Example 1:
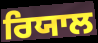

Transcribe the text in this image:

ਰਿਯਾਲ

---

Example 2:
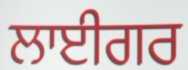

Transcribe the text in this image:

ਲਾਈਗਰ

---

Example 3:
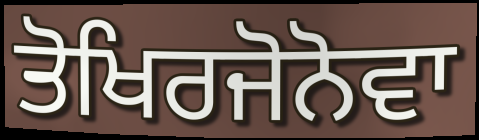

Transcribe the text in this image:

ਤੋਖਿਰਜੋਨੋਵਾ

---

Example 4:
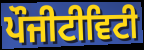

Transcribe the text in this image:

ਪੌਜੀਟੀਵਿਟੀ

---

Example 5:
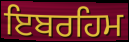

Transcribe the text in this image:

ਇਬਰਹਿਮ